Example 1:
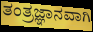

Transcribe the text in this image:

ತಂತ್ರಜ್ಞಾನವಾಗಿ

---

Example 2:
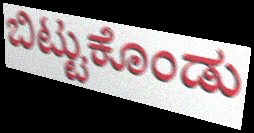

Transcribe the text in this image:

ಬಿಟ್ಟುಕೊಂಡು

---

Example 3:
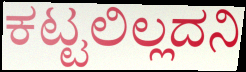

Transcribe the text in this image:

ಕಟ್ಟಲಿಲ್ಲದನಿ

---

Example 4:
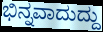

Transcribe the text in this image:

ಭಿನ್ನವಾದುದ್ದು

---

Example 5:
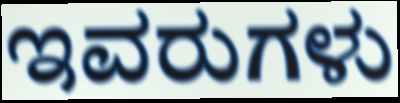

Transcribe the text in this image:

ಇವರುಗಳು